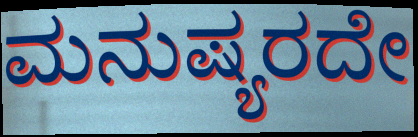
ಮನುಷ್ಯರದೇ